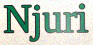
Njuri